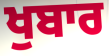
ਖੁਬਾਰ